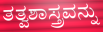
ತತ್ವಶಾಸ್ತ್ರವನ್ನು